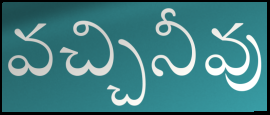
వచ్చినీవు